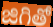
జిగితో